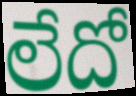
లేదో